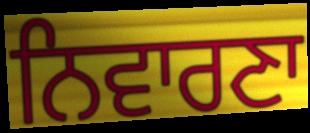
ਨਿਵਾਰਣਾ